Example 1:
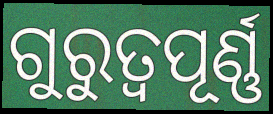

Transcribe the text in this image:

ଗୁରୁତ୍ବପୂର୍ଣ୍ଣ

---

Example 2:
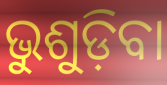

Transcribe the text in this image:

ଭୁଶୁଡ଼ିବା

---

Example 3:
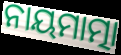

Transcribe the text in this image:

ନାୟମାତ୍ମା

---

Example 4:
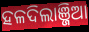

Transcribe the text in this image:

ହଳଦିଲାଞ୍ଜିଆ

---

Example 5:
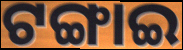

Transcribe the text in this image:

ଟଙ୍ଗାଇ